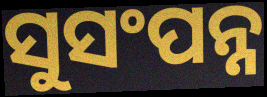
ସୁସଂପନ୍ନ